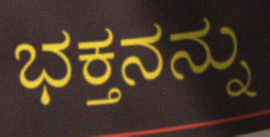
ಭಕ್ತನನ್ನು